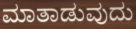
ಮಾತಾಡುವುದು